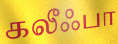
கலீஃபா